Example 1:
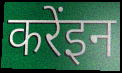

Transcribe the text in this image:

करेंइन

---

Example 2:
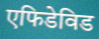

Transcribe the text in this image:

एफिडेविड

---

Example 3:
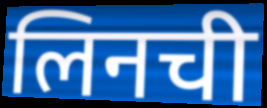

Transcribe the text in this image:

लिनची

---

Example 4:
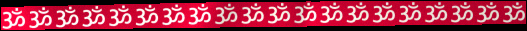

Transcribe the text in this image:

ॐॐॐॐॐॐॐॐॐॐॐॐॐॐॐॐॐॐॐॐ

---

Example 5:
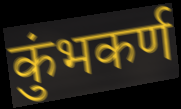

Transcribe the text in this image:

कुंभकर्ण